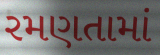
રમણતામાં